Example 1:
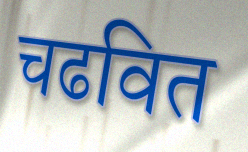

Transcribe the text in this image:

चढवित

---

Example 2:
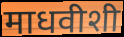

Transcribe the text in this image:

माधवीशी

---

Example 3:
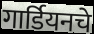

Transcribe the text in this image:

गार्डियनचे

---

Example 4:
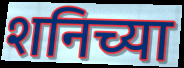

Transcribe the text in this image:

शनिच्या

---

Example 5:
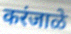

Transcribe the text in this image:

करंजाळे